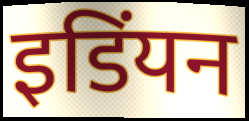
इडिंयन